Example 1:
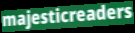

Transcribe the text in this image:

majesticreaders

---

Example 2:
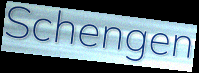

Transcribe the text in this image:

Schengen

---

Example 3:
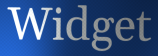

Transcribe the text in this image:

Widget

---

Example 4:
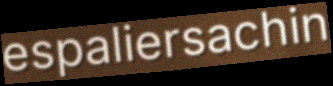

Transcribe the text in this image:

espaliersachin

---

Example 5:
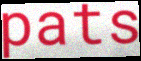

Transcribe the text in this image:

pats